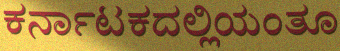
ಕರ್ನಾಟಕದಲ್ಲಿಯಂತೂ